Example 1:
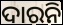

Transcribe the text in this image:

ଦାରନି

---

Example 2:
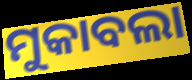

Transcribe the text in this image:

ମୁକାବଲା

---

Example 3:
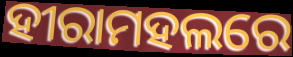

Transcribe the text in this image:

ହୀରାମହଲରେ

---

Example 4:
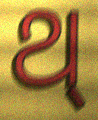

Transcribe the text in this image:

ଥ୍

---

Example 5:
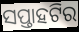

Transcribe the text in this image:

ସପ୍ତାହଟିର